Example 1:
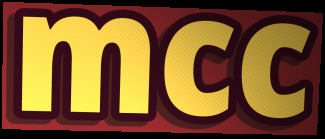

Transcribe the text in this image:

mcc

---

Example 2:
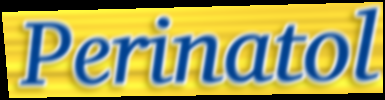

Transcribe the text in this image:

Perinatol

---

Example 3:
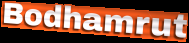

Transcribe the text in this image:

Bodhamrut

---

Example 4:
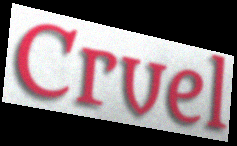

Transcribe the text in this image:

Cruel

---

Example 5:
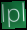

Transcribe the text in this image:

Ipl